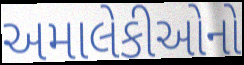
અમાલેકીઓનો